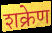
शक्रेण